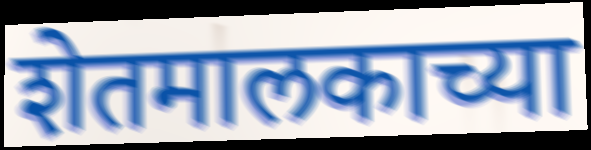
शेतमालकाच्या